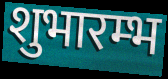
शुभारम्‍भ